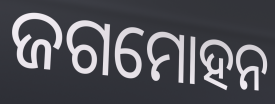
ଜଗମୋହନ